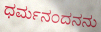
ಧರ್ಮನಂದನನು